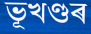
ভূখণ্ডৰ